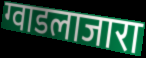
ग्वाडलाजारा